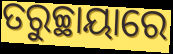
ତରୁଚ୍ଛାୟାରେ